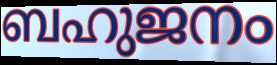
ബഹുജനം